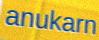
anukarn